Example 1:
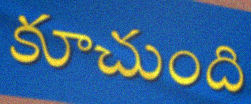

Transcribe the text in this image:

కూచుంది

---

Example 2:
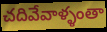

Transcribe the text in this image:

చదివేవాళ్ళంతా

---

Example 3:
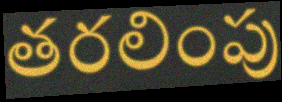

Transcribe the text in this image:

తరలింపు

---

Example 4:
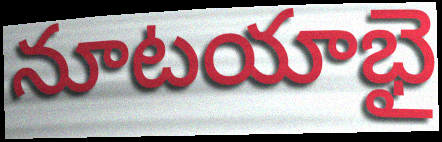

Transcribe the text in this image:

నూటయాభై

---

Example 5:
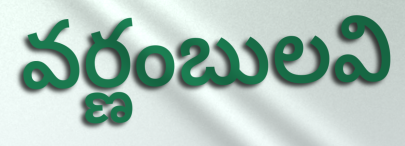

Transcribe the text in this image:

వర్ణంబులవి